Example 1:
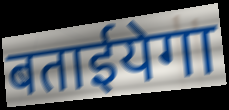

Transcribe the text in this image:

बताईयेगा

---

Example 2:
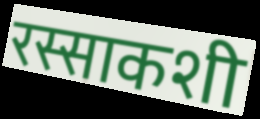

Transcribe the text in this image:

रस्साकशी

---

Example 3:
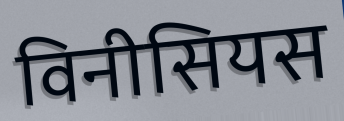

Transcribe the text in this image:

विनीसियस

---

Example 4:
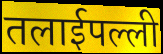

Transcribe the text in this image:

तलाईपल्ली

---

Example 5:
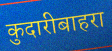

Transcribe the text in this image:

कुदारीबाहरा